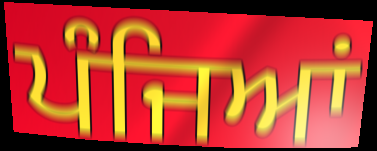
ਪੰਜਿਆਂ